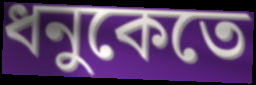
ধনুকেতে